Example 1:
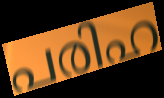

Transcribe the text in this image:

പരിഹ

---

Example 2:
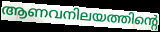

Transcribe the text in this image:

ആണവനിലയത്തിന്റെ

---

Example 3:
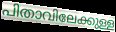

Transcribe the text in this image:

പിതാവിലേക്കുള്ള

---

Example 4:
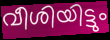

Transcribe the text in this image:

വീശിയിട്ടും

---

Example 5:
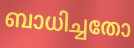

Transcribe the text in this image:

ബാധിച്ചതോ